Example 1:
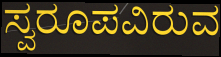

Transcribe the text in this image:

ಸ್ವರೂಪವಿರುವ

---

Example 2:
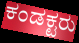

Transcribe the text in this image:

ಕಂಡಕ್ಟರು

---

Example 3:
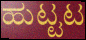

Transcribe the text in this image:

ಹುಟ್ಟಟ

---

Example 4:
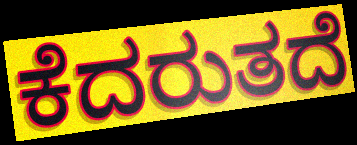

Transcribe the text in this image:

ಕೆದರುತದೆ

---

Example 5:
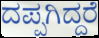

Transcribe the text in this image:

ದಪ್ಪಗಿದ್ದರೆ